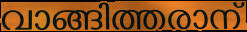
വാങ്ങിത്തരാന്